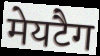
मेयटैग